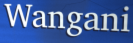
Wangani